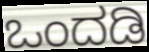
ಒಂದಡಿ